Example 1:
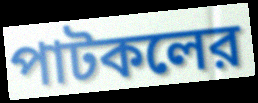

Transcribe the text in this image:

পাটকলের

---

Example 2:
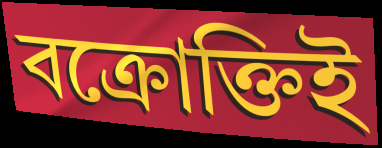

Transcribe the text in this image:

বক্রোক্তিই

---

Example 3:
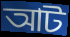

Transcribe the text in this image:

আট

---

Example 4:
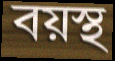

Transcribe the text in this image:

বয়স্থ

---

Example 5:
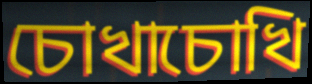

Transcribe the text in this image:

চোখাচোখি